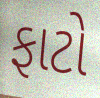
ફાટો